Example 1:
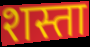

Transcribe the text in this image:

शस्ता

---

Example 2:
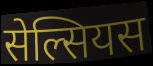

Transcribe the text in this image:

सेल्सियस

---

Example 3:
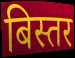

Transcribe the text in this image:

बिस्तर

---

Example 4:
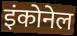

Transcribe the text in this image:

इंकोनेल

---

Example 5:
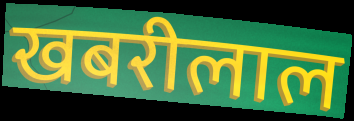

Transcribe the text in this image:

खबरीलाल